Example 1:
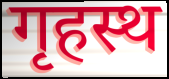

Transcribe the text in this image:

गृहस्थ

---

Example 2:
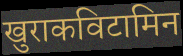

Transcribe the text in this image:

खुराकविटामिन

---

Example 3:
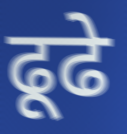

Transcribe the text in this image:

ढूढे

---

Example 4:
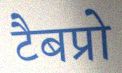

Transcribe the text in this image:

टैबप्रो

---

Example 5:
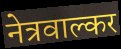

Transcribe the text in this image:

नेत्रवाल्कर